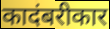
कादंबरीकार